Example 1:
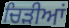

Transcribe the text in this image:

ਚਿੜੀਆਂ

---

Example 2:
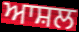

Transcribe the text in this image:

ਆਸ਼ਲ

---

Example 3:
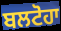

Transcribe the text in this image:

ਬਲਟੋਹਾ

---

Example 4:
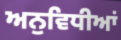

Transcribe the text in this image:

ਅਨੁਵਿਧੀਆਂ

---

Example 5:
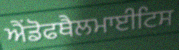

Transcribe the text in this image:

ਐਂਡੋਫਥੈਲਮਾਈਟਿਸ